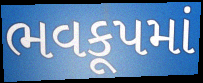
ભવકૂપમાં